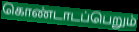
கொண்டாடப்பெறும்